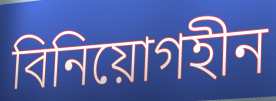
বিনিয়োগহীন